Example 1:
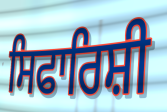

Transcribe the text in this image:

ਸਿਫਾਰਿਸ਼ੀ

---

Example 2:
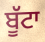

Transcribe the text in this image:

ਬੂੱਟਾ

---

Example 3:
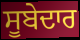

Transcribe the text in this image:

ਸੂਬੇਦਾਰ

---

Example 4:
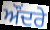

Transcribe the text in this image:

ਔਂਦਰੇ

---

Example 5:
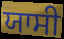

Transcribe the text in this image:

ਯਾਸੀ